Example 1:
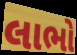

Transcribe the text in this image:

લાભો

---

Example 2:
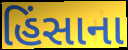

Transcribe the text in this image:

હિંસાના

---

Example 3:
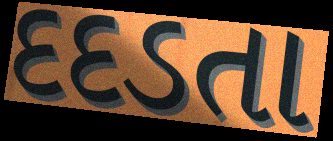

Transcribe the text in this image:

દદડતા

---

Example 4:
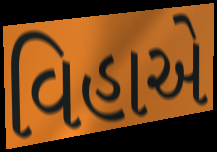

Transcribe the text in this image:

વિહાએ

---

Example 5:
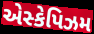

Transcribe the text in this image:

એસ્કેપિઝમ